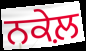
ਨਕੇਲ਼